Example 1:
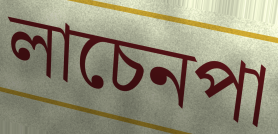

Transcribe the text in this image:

লাচেনপা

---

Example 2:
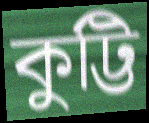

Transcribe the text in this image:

কুট্টি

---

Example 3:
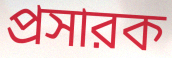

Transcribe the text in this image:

প্রসারক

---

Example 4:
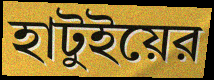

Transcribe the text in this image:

হাটুইয়ের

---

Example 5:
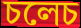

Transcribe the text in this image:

চলেচ